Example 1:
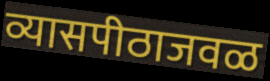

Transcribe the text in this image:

व्यासपीठाजवळ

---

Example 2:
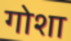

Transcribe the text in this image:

गोशा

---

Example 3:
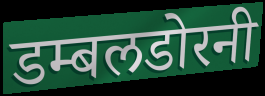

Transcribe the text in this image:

डम्बलडोरनी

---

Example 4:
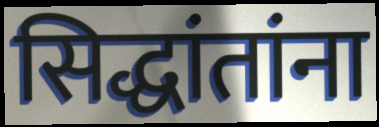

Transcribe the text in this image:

सिद्धांतांना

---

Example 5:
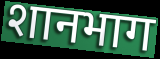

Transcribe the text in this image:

शानभाग